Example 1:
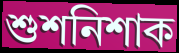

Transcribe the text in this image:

শুশনিশাক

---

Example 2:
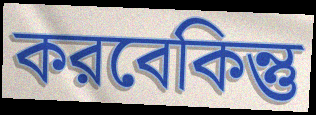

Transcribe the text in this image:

করবেকিন্তু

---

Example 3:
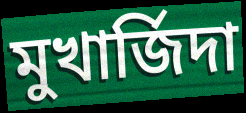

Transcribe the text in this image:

মুখার্জিদা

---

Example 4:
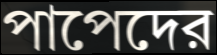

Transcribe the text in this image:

পাপেদের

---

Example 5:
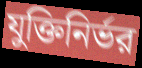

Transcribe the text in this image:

যুক্তিনির্ভর